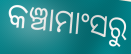
କଞ୍ଚାମାଂସରୁ